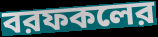
বরফকলের